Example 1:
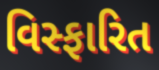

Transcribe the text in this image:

વિસ્ફારિત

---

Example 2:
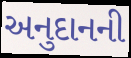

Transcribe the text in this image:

અનુદાનની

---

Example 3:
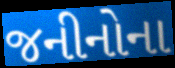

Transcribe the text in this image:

જનીનોના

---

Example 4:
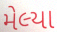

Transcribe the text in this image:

મેલ્યા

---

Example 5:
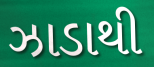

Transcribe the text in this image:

ઝાડાથી